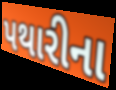
પથારીના